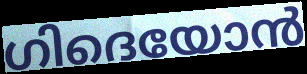
ഗിദെയോൻ